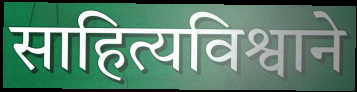
साहित्यविश्वाने